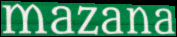
mazana